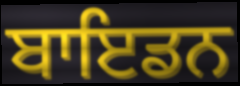
ਬਾਇਡਨ